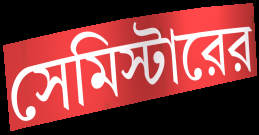
সেমিস্টারের